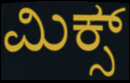
ಮಿಕ್ಸ್